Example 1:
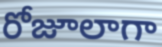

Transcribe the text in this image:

రోజూలాగా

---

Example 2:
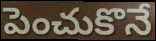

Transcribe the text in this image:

పెంచుకొనే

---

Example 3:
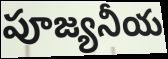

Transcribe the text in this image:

పూజ్యనీయ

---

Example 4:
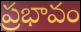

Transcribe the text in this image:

ప్రభావం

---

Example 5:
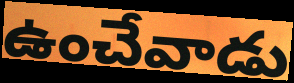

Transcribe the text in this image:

ఉంచేవాడు